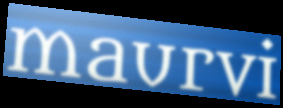
maurvi